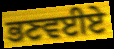
ਭਣਵਈਏ